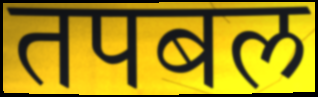
तपबल